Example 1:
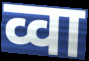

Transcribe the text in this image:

व्वा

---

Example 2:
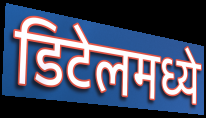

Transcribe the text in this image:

डिटेलमध्ये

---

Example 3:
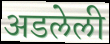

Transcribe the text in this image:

अडलेली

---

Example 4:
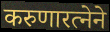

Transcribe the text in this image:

करुणारत्नेने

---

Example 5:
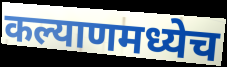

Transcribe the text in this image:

कल्याणमध्येच